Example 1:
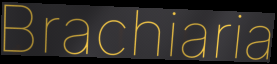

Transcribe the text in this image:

Brachiaria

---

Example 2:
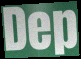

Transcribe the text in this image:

Dep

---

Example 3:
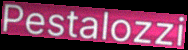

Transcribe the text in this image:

Pestalozzi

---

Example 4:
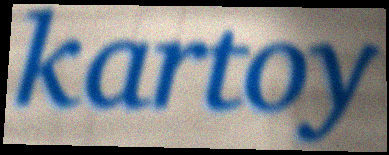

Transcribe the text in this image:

kartoy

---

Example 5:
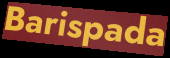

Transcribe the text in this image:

Barispada